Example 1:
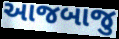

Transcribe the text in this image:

આજબાજુ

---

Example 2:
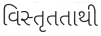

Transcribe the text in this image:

વિસ્તૃતતાથી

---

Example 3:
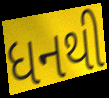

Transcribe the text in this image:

ધનથી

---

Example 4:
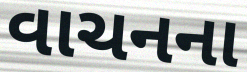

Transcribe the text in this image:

વાચનના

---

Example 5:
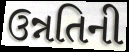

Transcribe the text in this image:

ઉન્નતિની